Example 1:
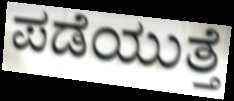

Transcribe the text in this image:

ಪಡೆಯುತ್ತೆ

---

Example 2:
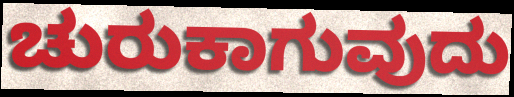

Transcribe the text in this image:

ಚುರುಕಾಗುವುದು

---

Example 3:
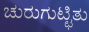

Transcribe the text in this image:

ಚುರುಗುಟ್ಟಿತು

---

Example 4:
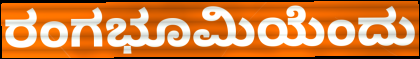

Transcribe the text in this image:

ರಂಗಭೂಮಿಯೆಂದು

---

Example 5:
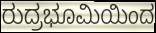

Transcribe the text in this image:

ರುದ್ರಭೂಮಿಯಿಂದ